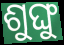
ଶୁଙ୍ଘୁ